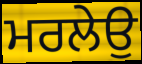
ਮਰਲੇਉ